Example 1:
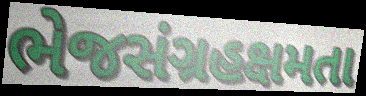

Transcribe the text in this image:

ભેજસંગ્રહક્ષમતા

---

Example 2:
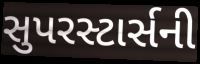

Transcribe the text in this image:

સુપરસ્ટાર્સની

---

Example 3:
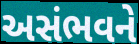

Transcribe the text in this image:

અસંભવને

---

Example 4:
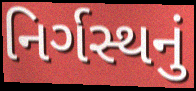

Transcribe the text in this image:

નિર્ગસ્થનું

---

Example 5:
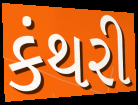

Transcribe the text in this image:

કંથરી